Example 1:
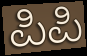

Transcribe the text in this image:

ಪಿಪಿ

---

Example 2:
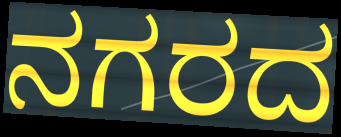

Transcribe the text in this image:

ನಗರದ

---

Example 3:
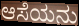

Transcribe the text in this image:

ಆಸೆಯನು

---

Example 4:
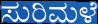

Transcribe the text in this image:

ಸುರಿಮಳೆ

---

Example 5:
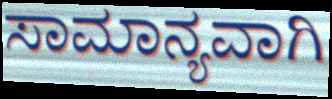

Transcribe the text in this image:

ಸಾಮಾನ್ಯವಾಗಿ